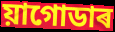
য়াগোডাৰ